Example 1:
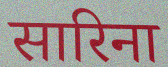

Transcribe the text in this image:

सारिना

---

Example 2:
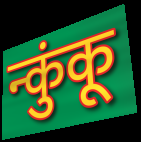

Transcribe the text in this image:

न्कुंकू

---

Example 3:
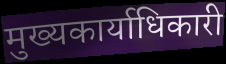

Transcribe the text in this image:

मुख्यकार्याधिकारी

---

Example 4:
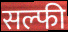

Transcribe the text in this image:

सल्फी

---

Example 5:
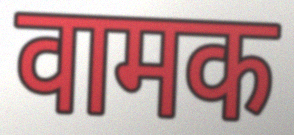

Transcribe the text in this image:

वामक